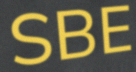
SBE